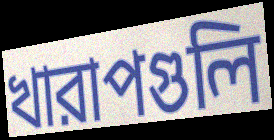
খারাপগুলি